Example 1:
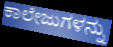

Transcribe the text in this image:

ಕಾಲೇಜುಗಳನ್ನು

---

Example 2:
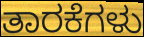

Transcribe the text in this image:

ತಾರಕೆಗಳು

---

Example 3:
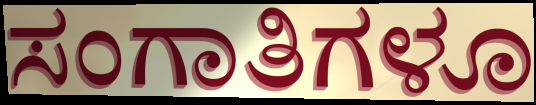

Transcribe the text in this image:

ಸಂಗಾತಿಗಳೂ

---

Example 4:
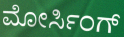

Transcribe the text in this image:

ಮೋರ್ಸಿಂಗ್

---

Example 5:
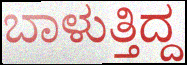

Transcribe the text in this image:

ಬಾಳುತ್ತಿದ್ದ